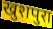
खुशपुरा